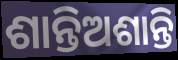
ଶାନ୍ତିଅଶାନ୍ତି